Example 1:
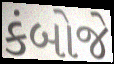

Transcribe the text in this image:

કંબોજે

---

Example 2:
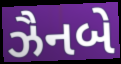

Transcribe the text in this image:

ઝૈનબે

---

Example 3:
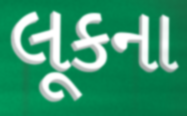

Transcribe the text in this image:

લૂકના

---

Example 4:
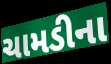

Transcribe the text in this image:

ચામડીના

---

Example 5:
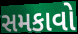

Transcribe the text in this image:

સમકાવો